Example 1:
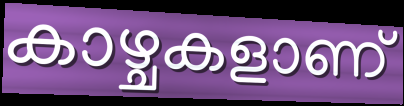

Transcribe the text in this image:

കാഴ്ചകളാണ്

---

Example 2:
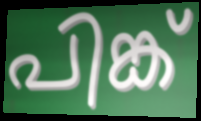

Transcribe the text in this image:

പിങ്ക്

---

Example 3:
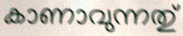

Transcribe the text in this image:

കാണാവുന്നതു്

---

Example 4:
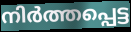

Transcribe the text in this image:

നിർത്തപ്പെട്ട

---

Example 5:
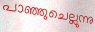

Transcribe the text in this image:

പാഞ്ഞുചെല്ലുന്നു